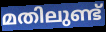
മതിലുണ്ട്